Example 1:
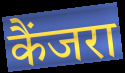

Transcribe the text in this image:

कैंजरा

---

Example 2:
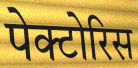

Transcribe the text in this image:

पेक्टोरिस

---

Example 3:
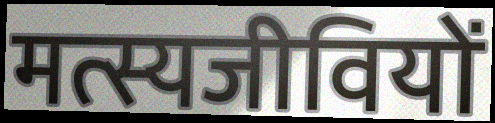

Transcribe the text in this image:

मत्स्यजीवियों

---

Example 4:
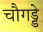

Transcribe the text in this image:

चौगड्डे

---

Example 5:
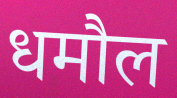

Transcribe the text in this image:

धमौल